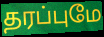
தரப்புமே